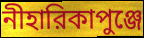
নীহারিকাপুঞ্জে